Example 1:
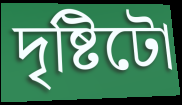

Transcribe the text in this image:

দৃষ্টিটো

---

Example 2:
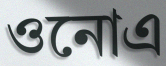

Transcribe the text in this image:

ওনোএ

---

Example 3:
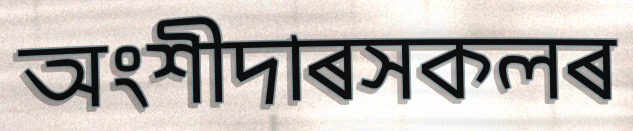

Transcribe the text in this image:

অংশীদাৰসকলৰ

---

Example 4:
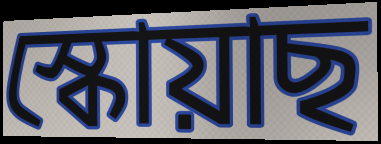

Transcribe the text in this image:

স্কোয়াছ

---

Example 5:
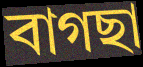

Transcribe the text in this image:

বাগছা